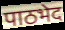
पाठभेद